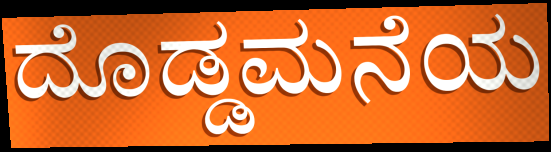
ದೊಡ್ಡಮನೆಯ